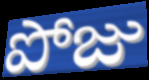
పోజు